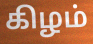
கிழம்